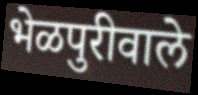
भेळपुरीवाले